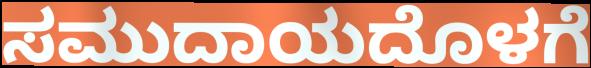
ಸಮುದಾಯದೊಳಗೆ